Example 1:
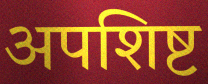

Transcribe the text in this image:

अपशिष्ट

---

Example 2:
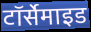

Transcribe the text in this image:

टॉर्सेमाइड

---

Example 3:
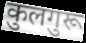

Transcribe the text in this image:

कुलगुरू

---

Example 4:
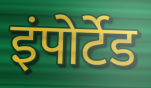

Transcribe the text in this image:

इंपोर्टेड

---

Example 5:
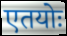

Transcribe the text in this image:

एतयोः